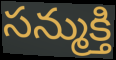
సన్ముక్తి